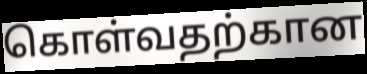
கொள்வதற்கான